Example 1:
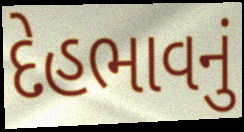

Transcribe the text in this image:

દેહભાવનું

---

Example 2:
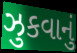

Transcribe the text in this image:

ઝુકવાનું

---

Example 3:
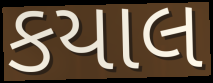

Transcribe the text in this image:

કયાલ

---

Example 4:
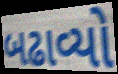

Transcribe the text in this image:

બઢાવ્યો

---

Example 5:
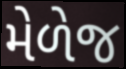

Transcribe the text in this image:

મેળેજ